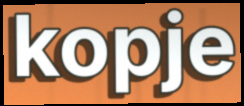
kopje